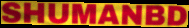
SHUMANBD